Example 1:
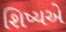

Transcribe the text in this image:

શિષ્યએ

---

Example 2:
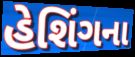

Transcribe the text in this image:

હેશિંગના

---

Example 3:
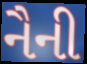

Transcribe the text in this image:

નૈની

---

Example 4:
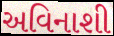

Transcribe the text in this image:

અવિનાશી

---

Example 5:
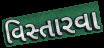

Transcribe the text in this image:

વિસ્તારવા